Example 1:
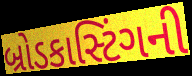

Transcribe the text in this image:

બ્રોડકાસ્ટિંગની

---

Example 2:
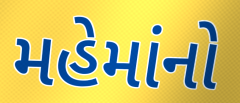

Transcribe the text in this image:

મહેમાંનો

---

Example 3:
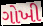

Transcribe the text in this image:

ગોખી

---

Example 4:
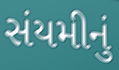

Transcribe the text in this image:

સંયમીનું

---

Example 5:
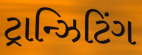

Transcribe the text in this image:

ટ્રાન્ઝિટિંગ